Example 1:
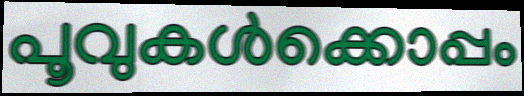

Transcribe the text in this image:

പൂവുകൾക്കൊപ്പം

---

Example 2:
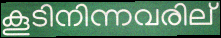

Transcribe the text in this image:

കൂടിനിന്നവരില്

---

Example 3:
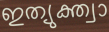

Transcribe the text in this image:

ഇത്യുക്ത്വാ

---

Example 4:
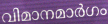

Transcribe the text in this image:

വിമാനമാർഗം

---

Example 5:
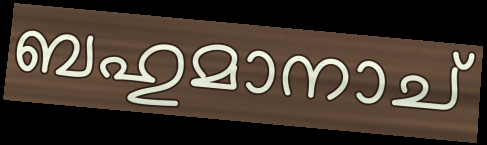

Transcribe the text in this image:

ബഹുമാനാച്